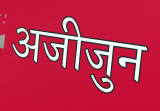
अजीजुन